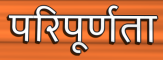
परिपूर्णता